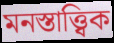
মনস্তাত্ত্বিক